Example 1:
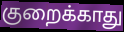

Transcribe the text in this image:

குறைக்காது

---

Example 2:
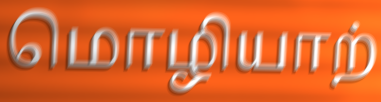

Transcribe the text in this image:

மொழியாற்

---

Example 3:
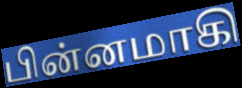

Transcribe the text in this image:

பின்னமாகி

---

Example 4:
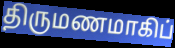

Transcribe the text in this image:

திருமணமாகிப்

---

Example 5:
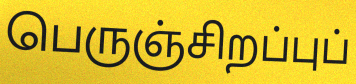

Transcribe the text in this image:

பெருஞ்சிறப்புப்